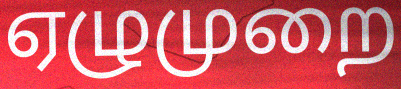
ஏழுமுறை